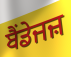
ਬੈਂਡੇਜਜ਼